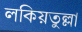
লকিয়তুল্লা